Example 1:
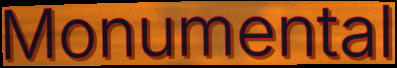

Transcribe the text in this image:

Monumental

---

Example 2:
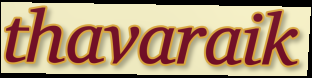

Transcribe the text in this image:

thavaraik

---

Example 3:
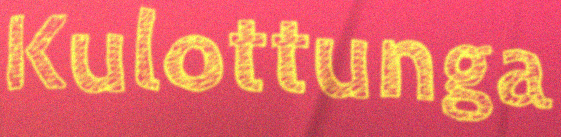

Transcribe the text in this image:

Kulottunga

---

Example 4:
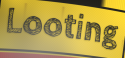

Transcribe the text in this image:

Looting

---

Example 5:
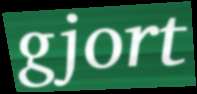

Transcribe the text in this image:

gjort